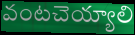
వంటచెయ్యాలి